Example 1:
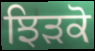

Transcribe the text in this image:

ਝਿੜਕੋ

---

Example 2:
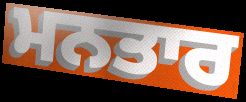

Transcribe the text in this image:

ਮਨਤਾਰ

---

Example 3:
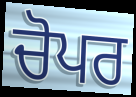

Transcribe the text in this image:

ਚੋਪਰ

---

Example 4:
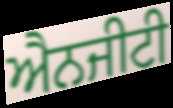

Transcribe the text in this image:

ਐਨਜੀਟੀ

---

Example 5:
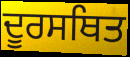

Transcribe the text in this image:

ਦੂਰਸਥਿਤ